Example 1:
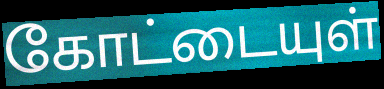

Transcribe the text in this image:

கோட்டையுள்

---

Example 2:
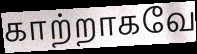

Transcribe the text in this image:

காற்றாகவே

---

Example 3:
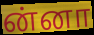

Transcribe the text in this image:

ன்னா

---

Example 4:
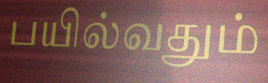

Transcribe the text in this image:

பயில்வதும்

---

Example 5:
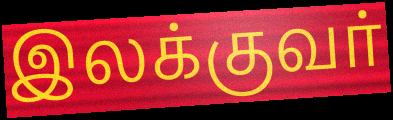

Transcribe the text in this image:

இலக்குவர்